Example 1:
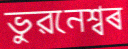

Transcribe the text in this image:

ভুৱনেশ্বৰ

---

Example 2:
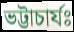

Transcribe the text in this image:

ভট্টাচাৰ্যঃ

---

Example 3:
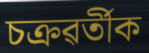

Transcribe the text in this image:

চক্ৰৱৰ্তীক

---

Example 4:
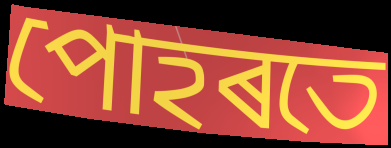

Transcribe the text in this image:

পোহৰতে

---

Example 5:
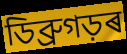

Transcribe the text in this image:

ডিব্ৰুগড়ৰ